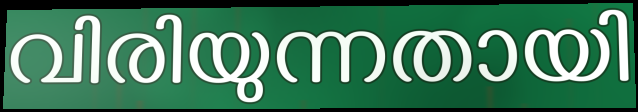
വിരിയുന്നതായി